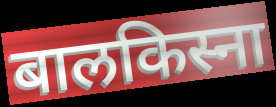
बालकिस्ना